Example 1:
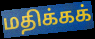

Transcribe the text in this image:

மதிக்கக்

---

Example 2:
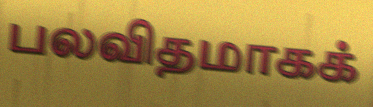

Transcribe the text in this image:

பலவிதமாகக்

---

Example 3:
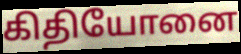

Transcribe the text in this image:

கிதியோனை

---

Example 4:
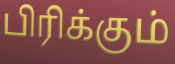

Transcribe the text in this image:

பிரிக்கும்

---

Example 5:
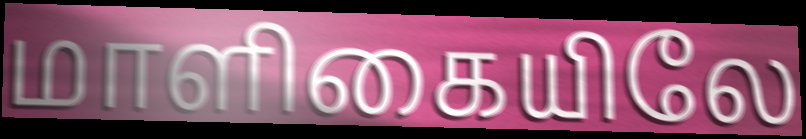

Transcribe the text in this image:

மாளிகையிலே